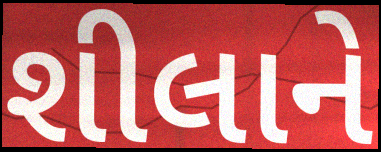
શીલાને